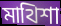
মাথিশা